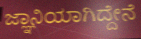
ಜ್ಞಾನಿಯಾಗಿದ್ದೇನೆ